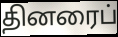
தினரைப்